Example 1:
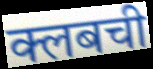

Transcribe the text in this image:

क्लबची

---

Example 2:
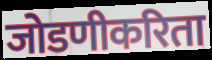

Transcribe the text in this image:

जोडणीकरिता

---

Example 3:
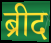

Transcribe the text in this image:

ब्रीद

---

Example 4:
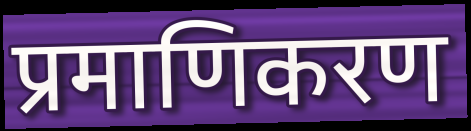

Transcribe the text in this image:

प्रमाणिकरण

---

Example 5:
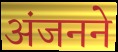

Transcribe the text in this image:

अंजनने